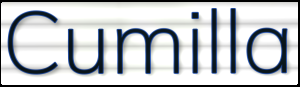
Cumilla